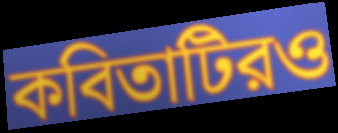
কবিতাটিরও